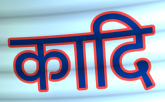
कादि